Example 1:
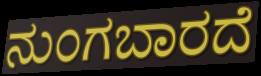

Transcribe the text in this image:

ನುಂಗಬಾರದೆ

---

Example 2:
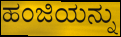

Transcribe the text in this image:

ಹಂಜಿಯನ್ನು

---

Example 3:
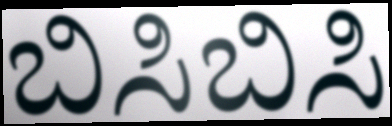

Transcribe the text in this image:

ಬಿಸಿಬಿಸಿ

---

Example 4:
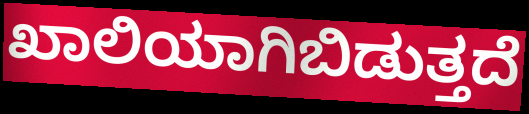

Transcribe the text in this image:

ಖಾಲಿಯಾಗಿಬಿಡುತ್ತದೆ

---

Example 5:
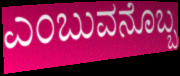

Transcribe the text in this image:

ಎಂಬುವನೊಬ್ಬ